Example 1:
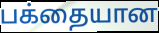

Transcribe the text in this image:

பக்தையான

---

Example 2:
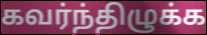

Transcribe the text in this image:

கவர்ந்திழுக்க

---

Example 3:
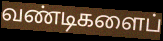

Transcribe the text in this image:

வண்டிகளைப்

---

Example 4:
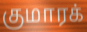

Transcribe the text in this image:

குமாரக்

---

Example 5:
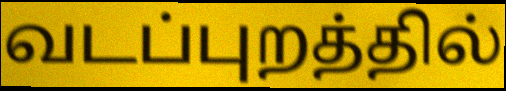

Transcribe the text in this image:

வடப்புறத்தில்